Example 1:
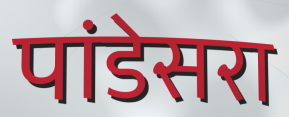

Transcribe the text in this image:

पांडेसरा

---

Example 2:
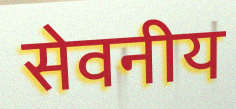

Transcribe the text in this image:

सेवनीय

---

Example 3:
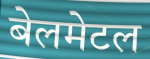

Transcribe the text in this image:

बेलमेटल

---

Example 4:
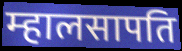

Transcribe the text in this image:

म्हालसापति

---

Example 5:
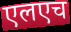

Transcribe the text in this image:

एलएच